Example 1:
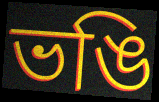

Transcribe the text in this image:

ভঙি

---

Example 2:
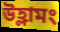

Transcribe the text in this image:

উহ্লামং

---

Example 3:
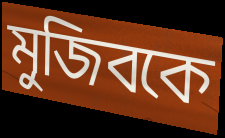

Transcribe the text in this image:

মুজিবকে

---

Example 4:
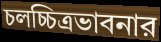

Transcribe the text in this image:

চলচ্চিত্রভাবনার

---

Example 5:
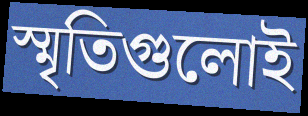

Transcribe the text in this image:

স্মৃতিগুলোই